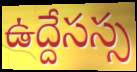
ఉద్దేసస్స